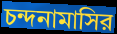
চন্দনামাসির